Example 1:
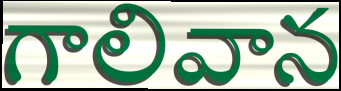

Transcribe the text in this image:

గాలివాన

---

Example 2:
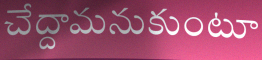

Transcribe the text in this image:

చేద్దామనుకుంటూ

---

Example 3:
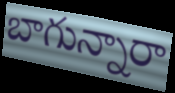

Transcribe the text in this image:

బాగున్నారా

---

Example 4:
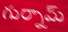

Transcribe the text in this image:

గుర్నామ్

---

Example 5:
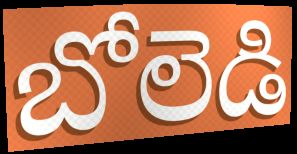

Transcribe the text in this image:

బోలెడి